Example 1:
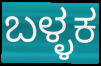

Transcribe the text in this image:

ಬಳ್ಳಕ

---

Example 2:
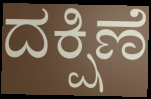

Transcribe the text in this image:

ದಕ್ಷಿಣೆ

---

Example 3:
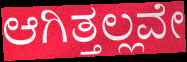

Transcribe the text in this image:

ಆಗಿತ್ತಲ್ಲವೇ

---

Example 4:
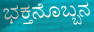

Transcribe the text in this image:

ಭಕ್ತನೊಬ್ಬನ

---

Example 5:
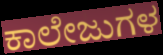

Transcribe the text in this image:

ಕಾಲೇಜುಗಳ